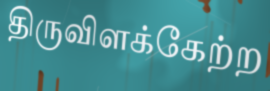
திருவிளக்கேற்ற